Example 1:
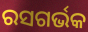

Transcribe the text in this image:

ରସଗର୍ଭକ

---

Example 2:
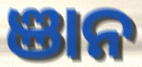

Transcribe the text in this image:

ଞାନ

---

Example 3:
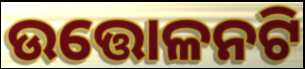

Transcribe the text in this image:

ଉତ୍ତୋଳନଟି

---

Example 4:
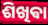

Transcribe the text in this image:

ଶିଖିଵା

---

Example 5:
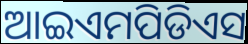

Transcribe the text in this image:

ଆଇଏମପିଡିଏସ